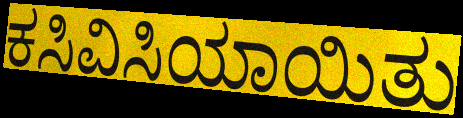
ಕಸಿವಿಸಿಯಾಯಿತು